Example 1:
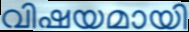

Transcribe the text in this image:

വിഷയമായി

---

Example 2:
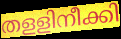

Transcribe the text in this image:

തളളിനീക്കി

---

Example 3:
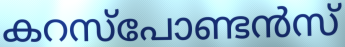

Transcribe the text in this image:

കറസ്പോണ്ടൻസ്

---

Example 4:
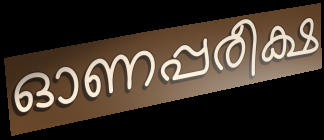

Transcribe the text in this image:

ഓണപ്പരീക്ഷ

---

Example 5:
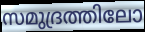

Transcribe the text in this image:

സമുദ്രത്തിലോ